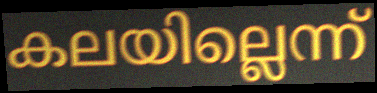
കലയില്ലെന്ന്